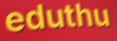
eduthu